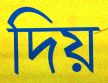
দিয়